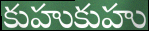
కుహుకుహు